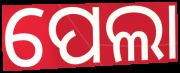
ପେଲା